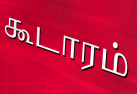
கூடாரம்